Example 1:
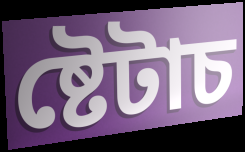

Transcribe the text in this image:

ষ্টেটাচ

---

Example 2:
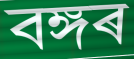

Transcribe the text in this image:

বঙ্গৰ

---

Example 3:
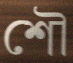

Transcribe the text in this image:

শৌ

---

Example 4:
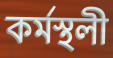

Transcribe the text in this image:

কৰ্মস্থলী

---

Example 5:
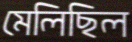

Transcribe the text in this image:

মেলিছিল